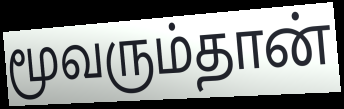
மூவரும்தான்